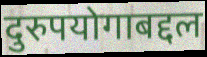
दुरुपयोगाबद्दल